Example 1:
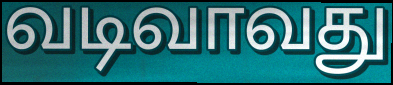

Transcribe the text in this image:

வடிவாவது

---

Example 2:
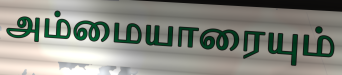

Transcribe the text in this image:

அம்மையாரையும்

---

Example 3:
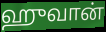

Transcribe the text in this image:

ஹுவான்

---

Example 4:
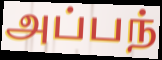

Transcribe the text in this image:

அப்பந்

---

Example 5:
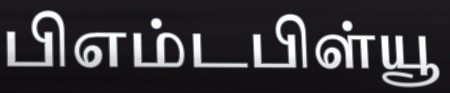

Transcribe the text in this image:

பிஎம்டபிள்யூ